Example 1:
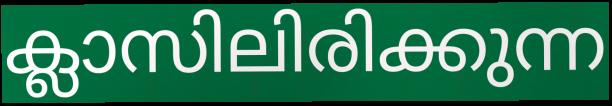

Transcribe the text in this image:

ക്ലാസിലിരിക്കുന്ന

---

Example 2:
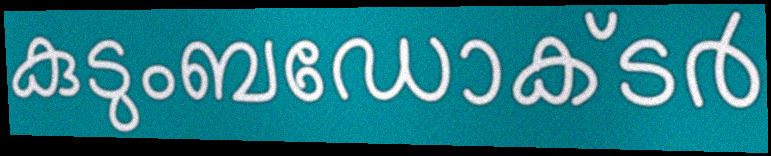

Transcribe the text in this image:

കുടുംബഡോക്ടർ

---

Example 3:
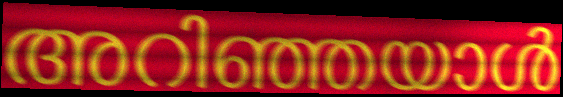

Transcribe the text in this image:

അറിഞ്ഞയാൾ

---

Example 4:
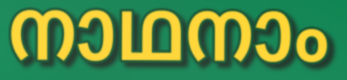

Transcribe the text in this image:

നാഥനാം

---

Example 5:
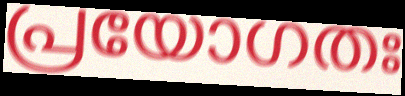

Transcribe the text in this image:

പ്രയോഗതഃ